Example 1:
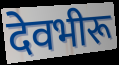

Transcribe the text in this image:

देवभीरू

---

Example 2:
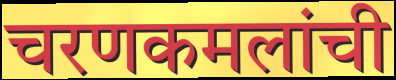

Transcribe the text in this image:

चरणकमलांची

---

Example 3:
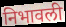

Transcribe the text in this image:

निभावली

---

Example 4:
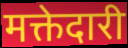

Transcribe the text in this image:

मक्तेदारी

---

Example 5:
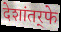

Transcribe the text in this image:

देशांतर्फे